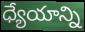
ధ్యేయాన్ని